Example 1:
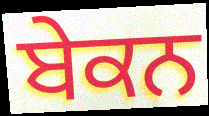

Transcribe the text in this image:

ਬੇਕਨ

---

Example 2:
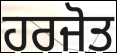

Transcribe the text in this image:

ਹਰਜੋਤ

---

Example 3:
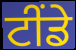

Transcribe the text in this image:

ਟੀਂਡੇ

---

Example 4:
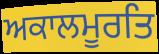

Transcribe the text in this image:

ਅਕਾਲਮੂਰਤਿ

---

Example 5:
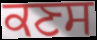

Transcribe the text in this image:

ਕਣਸ